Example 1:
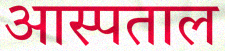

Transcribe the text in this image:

आस्पताल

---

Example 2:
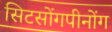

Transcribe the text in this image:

सिटसोंगपीनोंग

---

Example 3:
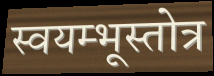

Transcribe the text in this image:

स्वयम्भूस्तोत्र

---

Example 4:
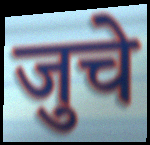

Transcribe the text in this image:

जुचे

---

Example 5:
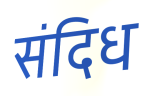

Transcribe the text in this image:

संदिध